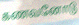
கணவனோடு